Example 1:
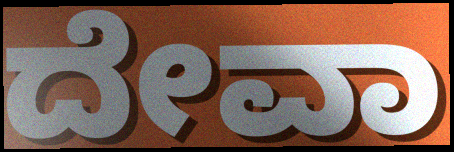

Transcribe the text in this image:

ದೇವಾ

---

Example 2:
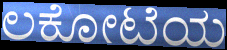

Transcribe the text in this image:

ಲಕೋಟೆಯ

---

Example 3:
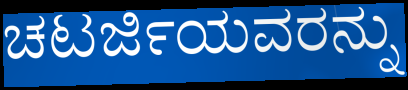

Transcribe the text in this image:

ಚಟರ್ಜಿಯವರನ್ನು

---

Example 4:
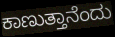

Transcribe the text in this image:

ಕಾಣುತ್ತಾನೆಂದು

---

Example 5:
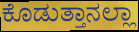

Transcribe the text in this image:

ಕೊಡುತ್ತಾನಲ್ಲಾ